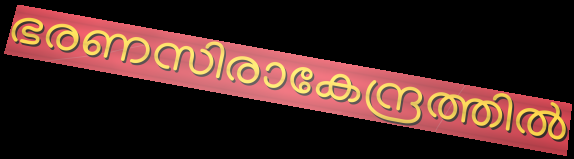
ഭരണസിരാകേന്ദ്രത്തിൽ